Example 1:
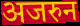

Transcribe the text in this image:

अजरुन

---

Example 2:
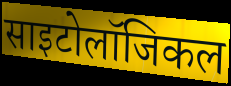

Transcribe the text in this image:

साइटोलॉजिकल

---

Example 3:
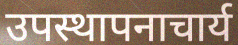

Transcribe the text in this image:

उपस्थापनाचार्य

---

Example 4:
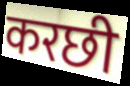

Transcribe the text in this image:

करछी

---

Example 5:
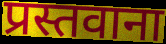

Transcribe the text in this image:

प्रस्तवाना